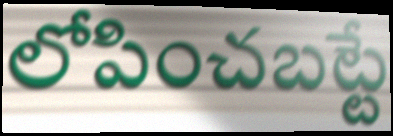
లోపించబట్టే